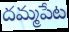
దమ్మపేట